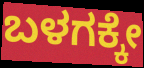
ಬಳಗಕ್ಕೇ